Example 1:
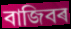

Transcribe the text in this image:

বাজিবৰ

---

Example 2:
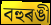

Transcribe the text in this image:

বহুৰঙী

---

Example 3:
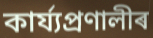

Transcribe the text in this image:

কাৰ্য্যপ্ৰণালীৰ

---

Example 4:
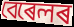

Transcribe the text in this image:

বেৰেলৰ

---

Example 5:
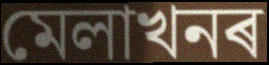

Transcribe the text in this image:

মেলাখনৰ